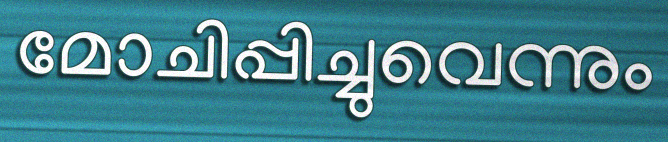
മോചിപ്പിച്ചുവെന്നും